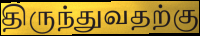
திருந்துவதற்கு